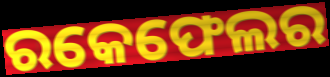
ରକେଫେଲର